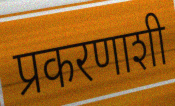
प्रकरणाशी